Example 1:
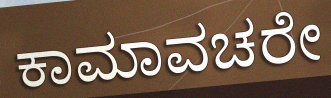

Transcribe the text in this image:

ಕಾಮಾವಚರೇ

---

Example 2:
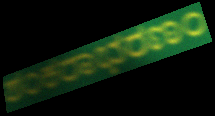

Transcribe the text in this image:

ಶಂಕರಾಭರಣಂ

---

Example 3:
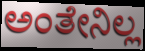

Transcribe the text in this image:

ಅಂತೇನಿಲ್ಲ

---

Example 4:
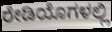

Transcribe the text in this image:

ರೇಡಿಯೊಗಳಲ್ಲಿ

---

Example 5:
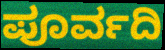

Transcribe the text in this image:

ಪೂರ್ವದಿ